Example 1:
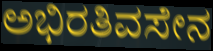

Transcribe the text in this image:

ಅಭಿರತಿವಸೇನ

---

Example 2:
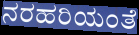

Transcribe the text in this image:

ನರಹರಿಯಂತೆ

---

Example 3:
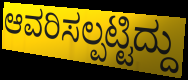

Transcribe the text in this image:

ಆವರಿಸಲ್ಪಟ್ಟಿದ್ದು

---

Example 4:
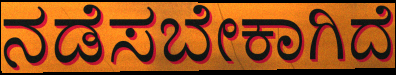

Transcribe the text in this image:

ನಡೆಸಬೇಕಾಗಿದೆ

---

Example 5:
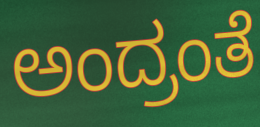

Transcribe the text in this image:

ಅಂದ್ರಂತೆ